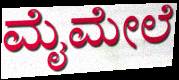
ಮೈಮೇಲೆ